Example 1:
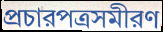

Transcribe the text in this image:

প্রচারপত্রসমীরণ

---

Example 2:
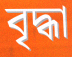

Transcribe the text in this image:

বৃদ্ধা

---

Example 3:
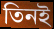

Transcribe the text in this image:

তিনই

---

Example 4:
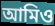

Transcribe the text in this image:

আমিও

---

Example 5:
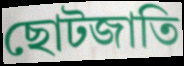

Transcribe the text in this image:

ছোটজাতি